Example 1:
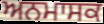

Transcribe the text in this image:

ਅਨਮਾਸਕ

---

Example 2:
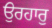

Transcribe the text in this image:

ਉਰਹਾਰੁ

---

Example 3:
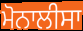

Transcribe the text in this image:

ਮੋਨਾਲੀਸਾ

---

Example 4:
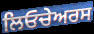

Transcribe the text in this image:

ਲਿਓਚੇਅਰਸ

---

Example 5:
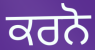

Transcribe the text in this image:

ਕਰਨੋ